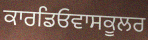
ਕਾਰਡਿਓਵਾਸਕੂਲਰ